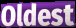
Oldest